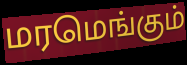
மரமெங்கும்